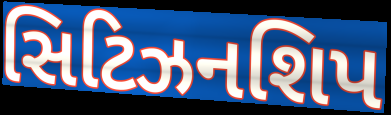
સિટિઝનશિપ